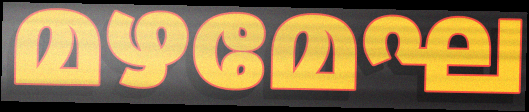
മഴമേഘ